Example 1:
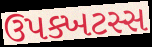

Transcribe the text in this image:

ઉપક્ખટસ્સ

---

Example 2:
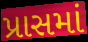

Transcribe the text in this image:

પ્રાસમાં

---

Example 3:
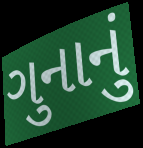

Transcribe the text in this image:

ગુનાનું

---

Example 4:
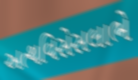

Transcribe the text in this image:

અત્થવિસેસલાભે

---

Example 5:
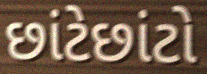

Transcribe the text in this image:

છાંટેછાંટો